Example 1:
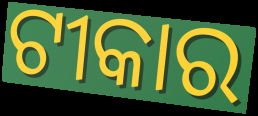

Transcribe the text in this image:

ଟୀକାର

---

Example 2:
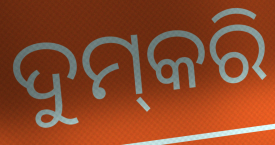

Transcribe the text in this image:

ଦୁମ୍‍କରି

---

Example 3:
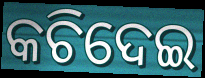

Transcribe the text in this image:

କଚିଦେଇ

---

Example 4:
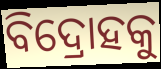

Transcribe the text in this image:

ବିଦ୍ରୋହକୁ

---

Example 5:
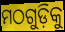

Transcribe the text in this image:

ମଠଗୁଡ଼ିକୁ